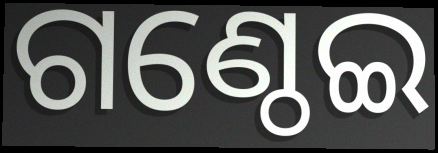
ଗଣ୍ଠେଇ